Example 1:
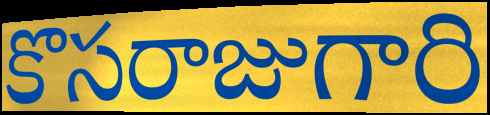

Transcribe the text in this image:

కొసరాజుగారి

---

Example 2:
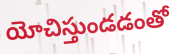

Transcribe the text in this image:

యోచిస్తుండడంతో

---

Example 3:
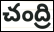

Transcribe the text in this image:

చంద్రి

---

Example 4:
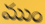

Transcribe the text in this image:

ముం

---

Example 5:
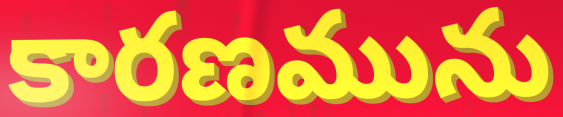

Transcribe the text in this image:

కారణమును